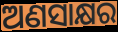
ଅଣସାକ୍ଷର